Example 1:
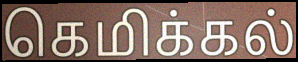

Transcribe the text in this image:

கெமிக்கல்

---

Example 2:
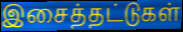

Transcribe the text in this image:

இசைத்தட்டுகள்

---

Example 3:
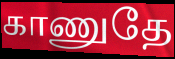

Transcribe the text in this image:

காணுதே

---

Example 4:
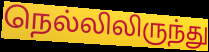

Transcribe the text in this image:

நெல்லிலிருந்து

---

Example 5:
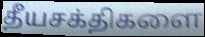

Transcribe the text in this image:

தீயசக்திகளை